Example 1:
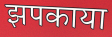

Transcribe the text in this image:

झपकाया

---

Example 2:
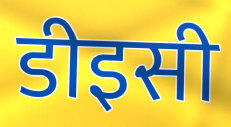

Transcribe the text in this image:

डीइसी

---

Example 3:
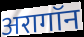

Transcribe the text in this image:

अरागॉन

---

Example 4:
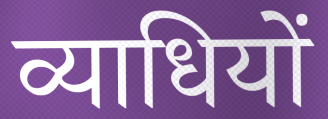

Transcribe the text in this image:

व्याधियों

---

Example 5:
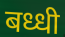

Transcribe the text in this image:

बध्धी